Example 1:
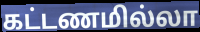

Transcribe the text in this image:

கட்டணமில்லா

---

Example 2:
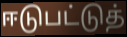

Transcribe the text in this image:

ஈடுபட்டுத்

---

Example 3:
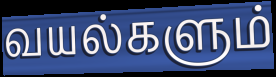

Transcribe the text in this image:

வயல்களும்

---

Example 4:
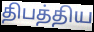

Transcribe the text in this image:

திபத்திய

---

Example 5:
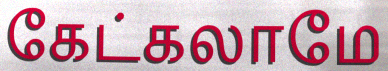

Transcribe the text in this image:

கேட்கலாமே